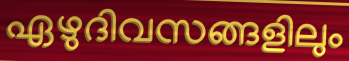
ഏഴുദിവസങ്ങളിലും